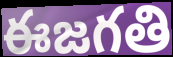
ఈజగతి